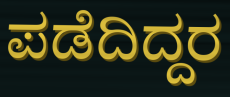
ಪಡೆದಿದ್ದರ